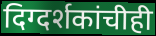
दिग्दर्शकांचीही